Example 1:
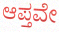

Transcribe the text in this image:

ಆಪ್ತವೇ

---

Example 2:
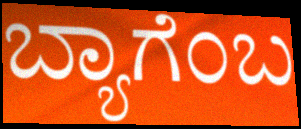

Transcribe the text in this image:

ಬ್ಯಾಗೆಂಬ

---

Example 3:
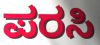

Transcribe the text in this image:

ಪರಸಿ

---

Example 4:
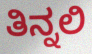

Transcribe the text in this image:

ತಿನ್ನಲಿ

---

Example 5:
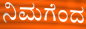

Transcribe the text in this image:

ನಿಮಗೆಂದ